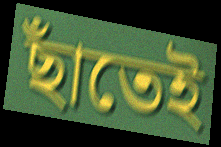
ছাঁতেই